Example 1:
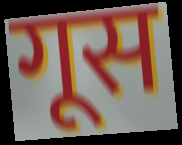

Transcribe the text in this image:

गूस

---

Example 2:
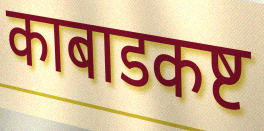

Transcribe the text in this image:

काबाडकष्ट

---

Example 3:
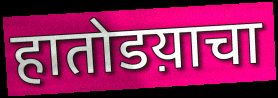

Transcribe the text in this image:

हातोडय़ाचा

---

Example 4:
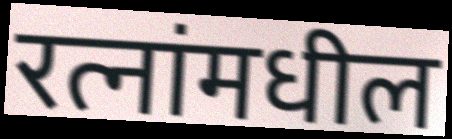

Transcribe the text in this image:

रत्नांमधील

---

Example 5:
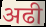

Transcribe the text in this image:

अढी